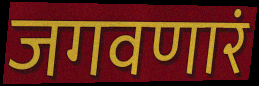
जगवणारं